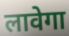
लावेगा